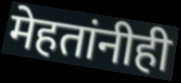
मेहतांनीही